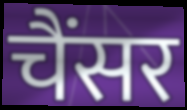
चैंसर